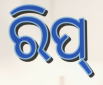
ରିପ୍